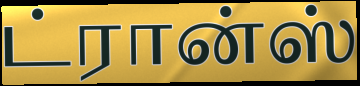
ட்ரான்ஸ்